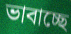
ভাবাচ্ছে